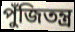
পুঁজিতন্ত্র